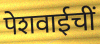
पेशवाईचीं